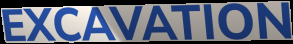
EXCAVATION